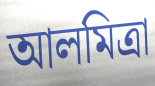
আলমিত্রা